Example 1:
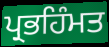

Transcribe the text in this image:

ਪ੍ਰਭਹਿੰਮਤ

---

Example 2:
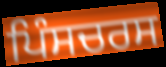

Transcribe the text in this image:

ਪਿੰਸਚਰਸ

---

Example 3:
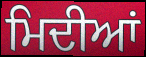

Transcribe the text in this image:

ਮਿਦੀਆਂ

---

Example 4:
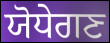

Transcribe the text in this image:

ਯੋਧੇਗਣ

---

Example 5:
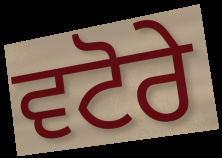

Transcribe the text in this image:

ਵਟੋਰੇ